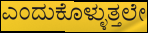
ಎಂದುಕೊಳ್ಳುತ್ತಲೇ